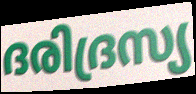
ദരിദ്രസ്യ